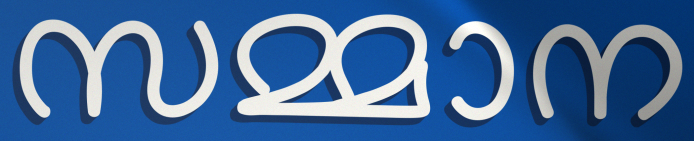
സമ്മാന